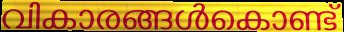
വികാരങ്ങൾകൊണ്ട്